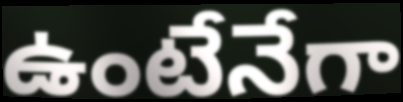
ఉంటేనేగా